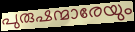
പുരുഷന്മാരേയും